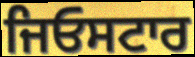
ਜਿਓਸਟਾਰ